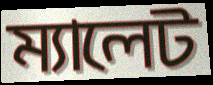
ম্যালেট